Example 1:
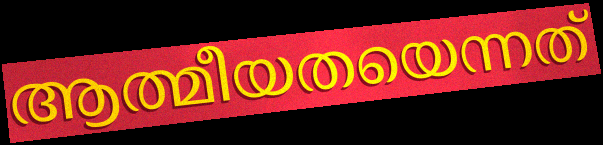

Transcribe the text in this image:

ആത്മീയതയെന്നത്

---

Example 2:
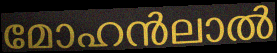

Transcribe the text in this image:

മോഹൻലാൽ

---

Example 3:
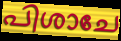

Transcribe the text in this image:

പിശാചേ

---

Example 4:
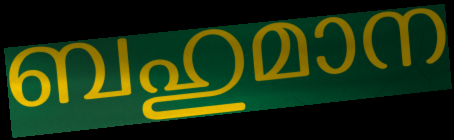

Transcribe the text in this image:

ബഹുമാന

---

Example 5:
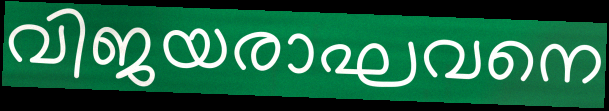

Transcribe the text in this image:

വിജയരാഘവനെ